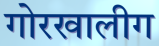
गोरखालीग